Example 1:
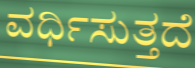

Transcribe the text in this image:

ವರ್ಧಿಸುತ್ತದೆ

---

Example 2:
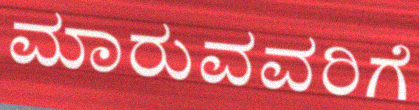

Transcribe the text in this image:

ಮಾರುವವರಿಗೆ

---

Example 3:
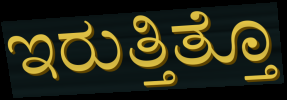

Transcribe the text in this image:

ಇರುತ್ತಿತ್ತೊ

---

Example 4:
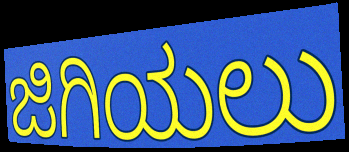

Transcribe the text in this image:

ಜಿಗಿಯಲು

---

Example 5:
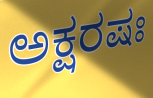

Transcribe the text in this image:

ಅಕ್ಷರಷಃ